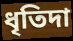
ধৃতিদা